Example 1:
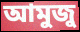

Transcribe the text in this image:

আমুজু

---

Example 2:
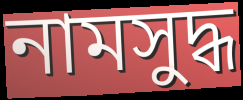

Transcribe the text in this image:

নামসুদ্ধ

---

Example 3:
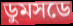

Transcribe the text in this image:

ডুমসডে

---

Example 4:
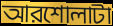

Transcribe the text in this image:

আরশোলাটা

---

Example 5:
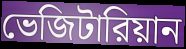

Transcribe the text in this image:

ভেজিটারিয়ান